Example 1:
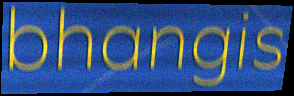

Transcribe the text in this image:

bhangis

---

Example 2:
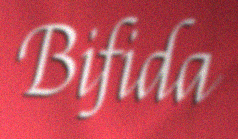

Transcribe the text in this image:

Bifida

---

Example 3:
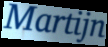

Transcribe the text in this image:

Martijn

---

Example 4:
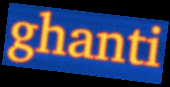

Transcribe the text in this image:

ghanti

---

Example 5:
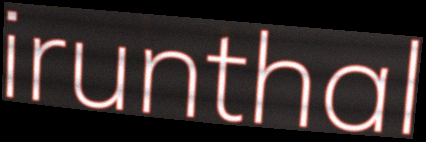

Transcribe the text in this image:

irunthal